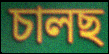
চালছ